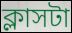
ক্লাসটা